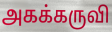
அகக்கருவி